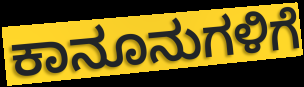
ಕಾನೂನುಗಳಿಗೆ